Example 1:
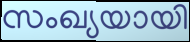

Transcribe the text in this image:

സംഖ്യയായി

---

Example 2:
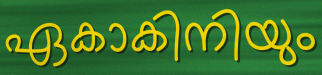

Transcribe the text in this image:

ഏകാകിനിയും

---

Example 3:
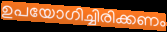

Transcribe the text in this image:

ഉപയോഗിച്ചിരിക്കണം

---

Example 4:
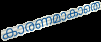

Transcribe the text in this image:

കാരണമാകാതെ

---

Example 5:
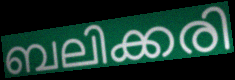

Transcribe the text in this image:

ബലിക്കരി